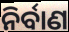
ନିର୍ବାଣ